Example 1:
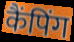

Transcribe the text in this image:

कैंपिंग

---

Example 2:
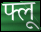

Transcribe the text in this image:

फ्लू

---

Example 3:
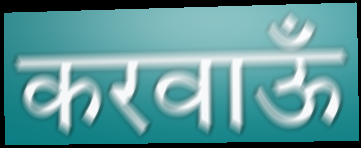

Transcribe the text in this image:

करवाऊँ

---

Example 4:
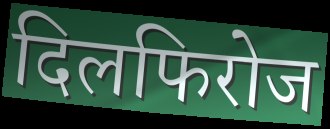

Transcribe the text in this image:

दिलफिरोज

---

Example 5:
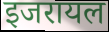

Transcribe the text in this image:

इजरायल